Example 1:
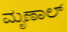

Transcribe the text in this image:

ಮೃಣಾಲ್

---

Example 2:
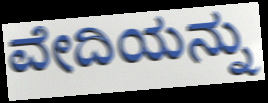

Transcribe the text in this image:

ವೇದಿಯನ್ನು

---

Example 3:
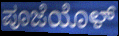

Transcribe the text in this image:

ಪೂಜೆಯೊಳ್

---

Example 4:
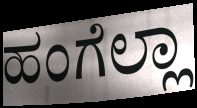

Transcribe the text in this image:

ಹಂಗೆಲ್ಲಾ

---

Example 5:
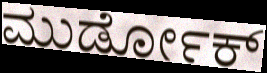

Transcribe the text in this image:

ಮುರ್ಡೋಕ್